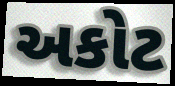
અકોટ